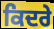
ਕਿਦਰੇ